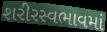
શરીરસ્વભાવમાં